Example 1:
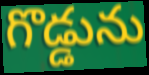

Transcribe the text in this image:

గొడ్డును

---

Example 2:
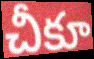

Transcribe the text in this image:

చీకూ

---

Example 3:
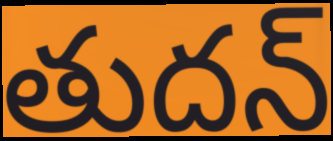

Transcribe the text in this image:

తుదన్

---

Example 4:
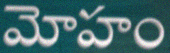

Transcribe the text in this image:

మోహం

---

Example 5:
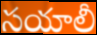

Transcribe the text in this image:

సయాలీ